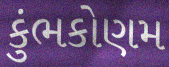
કુંભકોણમ